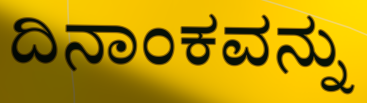
ದಿನಾಂಕವನ್ನು